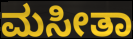
ಮಸೀತಾ